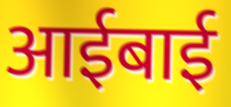
आईबाई